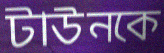
টাউনকে